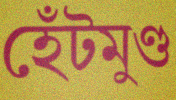
হেঁটমুণ্ড